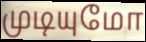
முடியுமோ